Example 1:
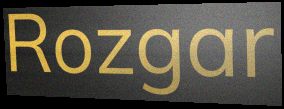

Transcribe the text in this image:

Rozgar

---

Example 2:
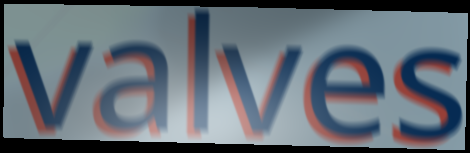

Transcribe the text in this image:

valves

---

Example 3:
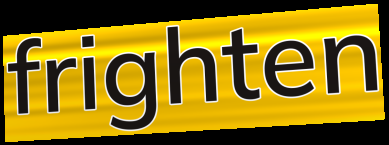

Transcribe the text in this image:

frighten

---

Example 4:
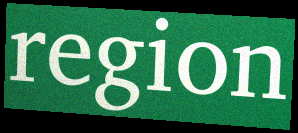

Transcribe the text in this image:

region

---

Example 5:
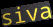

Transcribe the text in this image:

siva